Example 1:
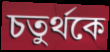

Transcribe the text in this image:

চতুর্থকে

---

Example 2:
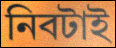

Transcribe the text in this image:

নিবটাই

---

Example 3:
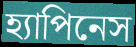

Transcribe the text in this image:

হ্যাপিনেস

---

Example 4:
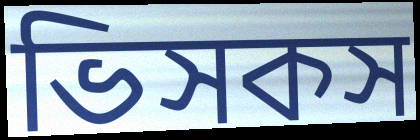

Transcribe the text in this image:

ভিসকস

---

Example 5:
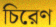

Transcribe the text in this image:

চিরেণ